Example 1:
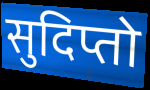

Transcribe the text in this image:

सुदिप्तो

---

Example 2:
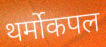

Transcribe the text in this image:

थर्मोकपल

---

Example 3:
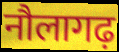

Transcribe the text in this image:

नौलागढ़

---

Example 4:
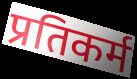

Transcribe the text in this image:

प्रतिकर्म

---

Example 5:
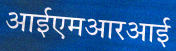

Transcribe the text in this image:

आईएमआरआई